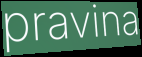
pravina